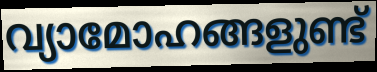
വ്യാമോഹങ്ങളുണ്ട്